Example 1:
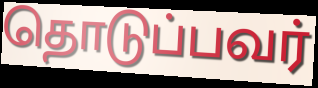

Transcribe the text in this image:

தொடுப்பவர்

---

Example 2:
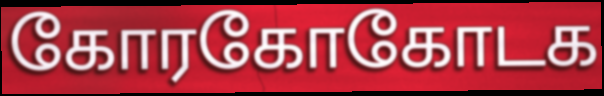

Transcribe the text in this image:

கோரகோகோடக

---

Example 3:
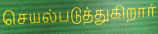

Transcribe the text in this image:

செயல்படுத்துகிறார்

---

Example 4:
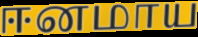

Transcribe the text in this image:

ஈனமாய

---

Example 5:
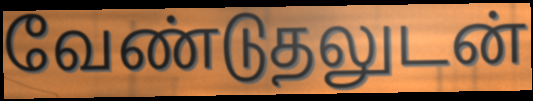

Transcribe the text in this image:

வேண்டுதலுடன்